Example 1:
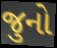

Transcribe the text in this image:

જુનો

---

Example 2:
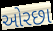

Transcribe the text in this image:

ઓરછા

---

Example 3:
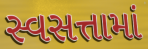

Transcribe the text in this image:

સ્વસત્તામાં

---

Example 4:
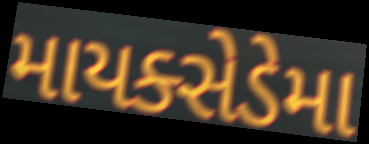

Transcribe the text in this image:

માયક્સેડેમા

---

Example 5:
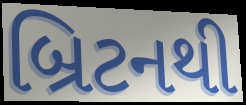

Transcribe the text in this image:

બ્રિટનથી